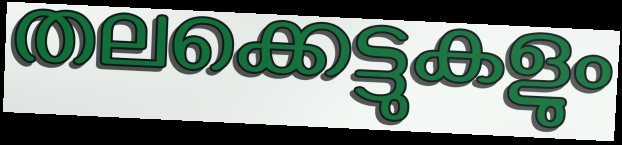
തലക്കെട്ടുകളും